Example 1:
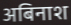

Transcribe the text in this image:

अबिनाश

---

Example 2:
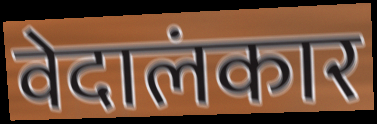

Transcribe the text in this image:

वेदालंकार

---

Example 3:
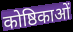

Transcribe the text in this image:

कोष्ठिकाओं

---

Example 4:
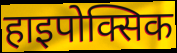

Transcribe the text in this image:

हाइपोक्सिक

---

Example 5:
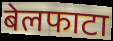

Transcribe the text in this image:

बेलफाटा